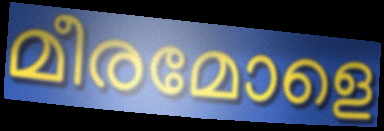
മീരമോളെ